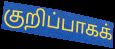
குறிப்பாகக்